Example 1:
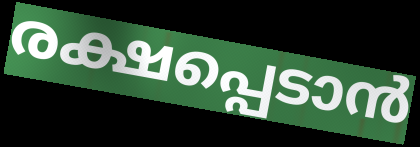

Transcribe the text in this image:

രക്ഷപ്പെടാൻ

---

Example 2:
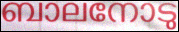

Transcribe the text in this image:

ബാലനോടു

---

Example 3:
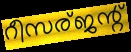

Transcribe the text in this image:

റീസര്ജന്റ്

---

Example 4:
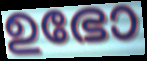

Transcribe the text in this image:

ഉഭോ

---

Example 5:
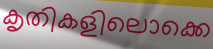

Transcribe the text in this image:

കൃതികളിലൊക്കെ